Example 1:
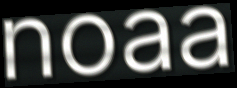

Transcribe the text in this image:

noaa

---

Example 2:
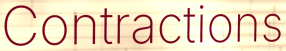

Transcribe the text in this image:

Contractions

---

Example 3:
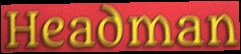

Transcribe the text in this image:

Headman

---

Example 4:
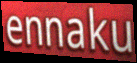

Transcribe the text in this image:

ennaku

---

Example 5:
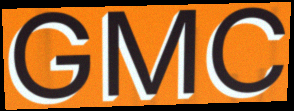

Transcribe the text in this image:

GMC